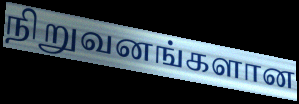
நிறுவனங்களான